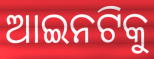
ଆଇନଟିକୁ